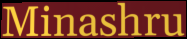
Minashru